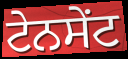
ਟੇਨਸੇਂਟ